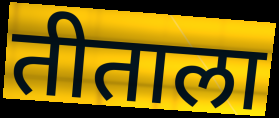
तीताला